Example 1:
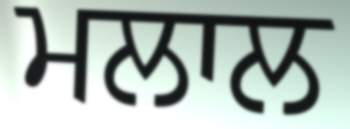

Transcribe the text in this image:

ਮਲਾਲ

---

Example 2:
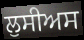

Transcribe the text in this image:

ਲੁਸੀਅਸ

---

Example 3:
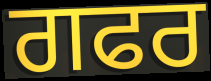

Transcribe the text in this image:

ਗਫਰ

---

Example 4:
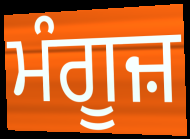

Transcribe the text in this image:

ਮੰਗੂਜ਼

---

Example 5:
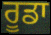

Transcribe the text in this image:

ਰੂਡਾ